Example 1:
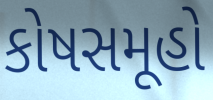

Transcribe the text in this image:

કોષસમૂહો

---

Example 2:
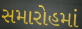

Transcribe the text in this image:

સમારોહમાં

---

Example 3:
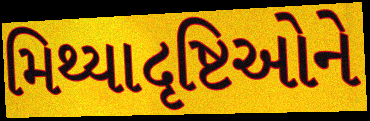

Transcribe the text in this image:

મિથ્યાદૃષ્ટિઓને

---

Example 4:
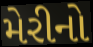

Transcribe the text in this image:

મેરીનો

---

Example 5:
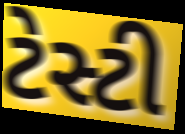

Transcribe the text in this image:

ટેસ્ટી